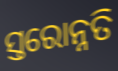
ସ୍ତରୋନ୍ନତି